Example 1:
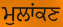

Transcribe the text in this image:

ਮੁਲਾਂਕਣ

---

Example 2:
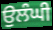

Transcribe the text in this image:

ਉਲੰਘੀ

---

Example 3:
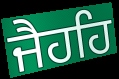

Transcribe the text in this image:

ਜੈਹਹਿ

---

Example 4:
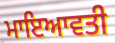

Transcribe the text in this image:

ਮਾਇਆਵਤੀ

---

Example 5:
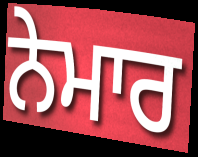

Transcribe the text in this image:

ਨੇਮਾਰ